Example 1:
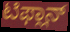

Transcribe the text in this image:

ಟೆಫ್ಲಾನ್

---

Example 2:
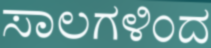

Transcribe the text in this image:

ಸಾಲಗಳಿಂದ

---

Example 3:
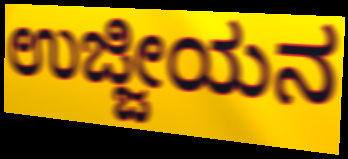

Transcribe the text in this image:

ಉಜ್ಜೀಯನ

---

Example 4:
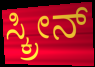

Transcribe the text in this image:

ಸ್ಕ್ರೀನ್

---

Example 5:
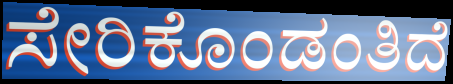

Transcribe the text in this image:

ಸೇರಿಕೊಂಡಂತಿದೆ